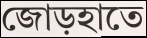
জোড়হাতে